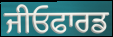
ਜੀਓਫਾਰਡ